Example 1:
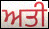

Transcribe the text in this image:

ਅਤੀ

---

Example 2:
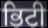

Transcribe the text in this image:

ਭਿਟੀ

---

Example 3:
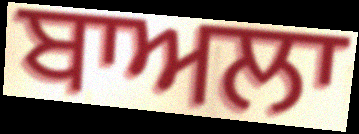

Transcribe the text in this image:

ਬਾਅਲਾ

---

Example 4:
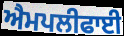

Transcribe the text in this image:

ਐਮਪਲੀਫਾਈ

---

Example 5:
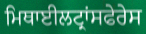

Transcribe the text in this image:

ਮਿਥਾਈਲਟ੍ਰਾਂਸਫੇਰੇਸ